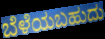
ಬೆಳೆಯಬಹುದು